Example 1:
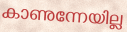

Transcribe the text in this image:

കാണുന്നേയില്ല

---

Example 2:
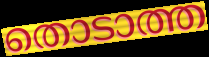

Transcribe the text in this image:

തൊടാത്ത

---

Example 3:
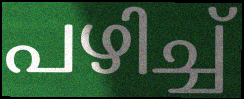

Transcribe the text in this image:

പഴിച്ച്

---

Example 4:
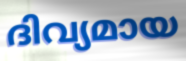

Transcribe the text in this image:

ദിവ്യമായ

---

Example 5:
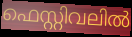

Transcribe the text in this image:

ഫെസ്റ്റിവലിൽ